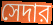
সেদার